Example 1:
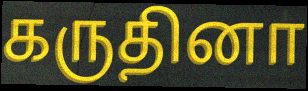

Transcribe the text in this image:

கருதினா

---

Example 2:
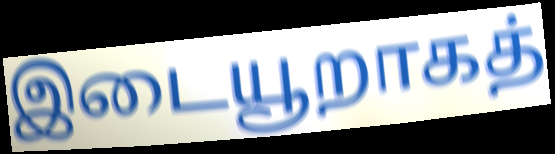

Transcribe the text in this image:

இடையூறாகத்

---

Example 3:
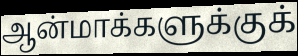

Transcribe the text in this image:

ஆன்மாக்களுக்குக்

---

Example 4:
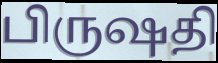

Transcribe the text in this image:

பிருஷதி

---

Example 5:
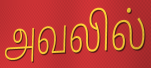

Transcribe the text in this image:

அவலில்